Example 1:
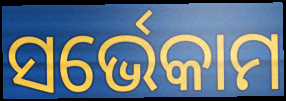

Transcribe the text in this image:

ସର୍ଭେକାମ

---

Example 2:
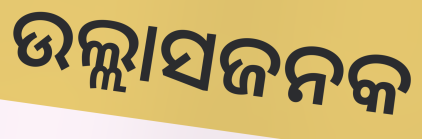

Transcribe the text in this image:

ଉଲ୍ଲାସଜନକ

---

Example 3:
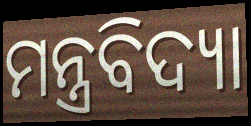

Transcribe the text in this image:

ମନ୍ତ୍ରବିଦ୍ୟା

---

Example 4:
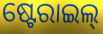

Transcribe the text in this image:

ଷ୍ଟେରାଇଲ୍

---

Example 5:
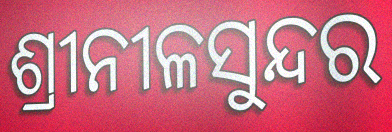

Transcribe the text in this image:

ଶ୍ରୀନୀଳସୁନ୍ଦର